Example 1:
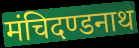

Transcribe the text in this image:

मंचिदण्डनाथ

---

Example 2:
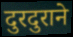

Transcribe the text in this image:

दुरदुराने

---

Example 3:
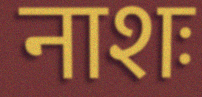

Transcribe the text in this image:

नाशः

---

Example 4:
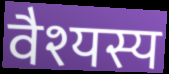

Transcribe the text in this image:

वैश्यस्य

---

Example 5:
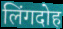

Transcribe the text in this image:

लिंगदोह